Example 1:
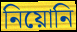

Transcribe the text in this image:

নিয়োনি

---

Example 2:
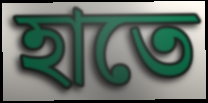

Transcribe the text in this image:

হাতে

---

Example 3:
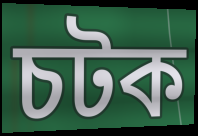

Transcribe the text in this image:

চটক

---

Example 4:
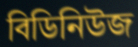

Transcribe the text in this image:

বিডিনিউজ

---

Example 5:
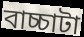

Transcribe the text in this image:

বাচ্চাটা